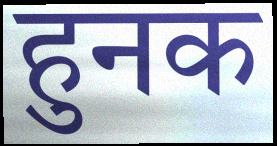
हुनक